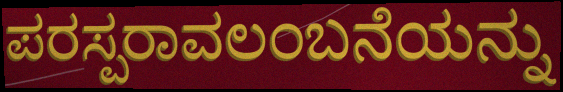
ಪರಸ್ಪರಾವಲಂಬನೆಯನ್ನು